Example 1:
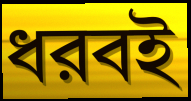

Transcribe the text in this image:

ধরবই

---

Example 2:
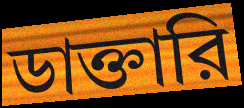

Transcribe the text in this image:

ডাক্তারি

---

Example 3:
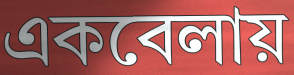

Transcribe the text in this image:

একবেলায়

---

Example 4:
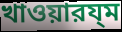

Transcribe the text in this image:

খাওয়ারয্ম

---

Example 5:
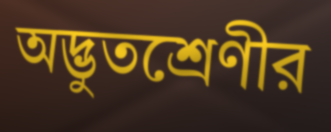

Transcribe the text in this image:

অদ্ভুতশ্রেণীর